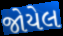
જોયેલ